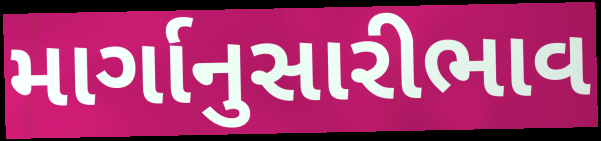
માર્ગાનુસારીભાવ